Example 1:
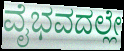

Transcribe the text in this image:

ವೈಭವದಲ್ಲೇ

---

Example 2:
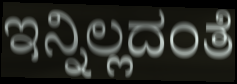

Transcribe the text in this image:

ಇನ್ನಿಲ್ಲದಂತೆ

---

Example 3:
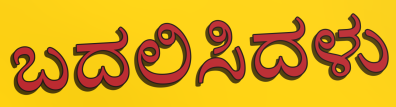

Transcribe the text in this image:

ಬದಲಿಸಿದಳು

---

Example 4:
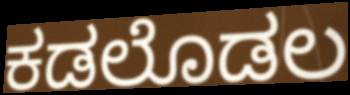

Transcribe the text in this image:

ಕಡಲೊಡಲ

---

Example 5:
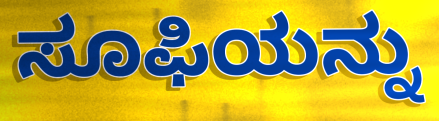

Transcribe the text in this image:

ಸೂಫಿಯನ್ನು